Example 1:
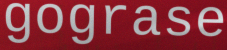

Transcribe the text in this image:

gograse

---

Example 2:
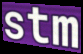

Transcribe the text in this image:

stm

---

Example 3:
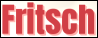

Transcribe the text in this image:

Fritsch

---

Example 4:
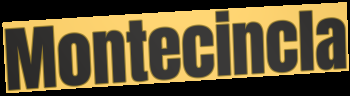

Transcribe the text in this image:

Montecincla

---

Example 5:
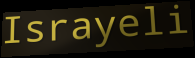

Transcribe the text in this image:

Israyeli